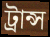
ট্রান্স